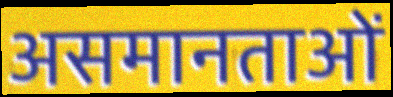
असमानताओं